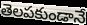
తెలపకుండానే